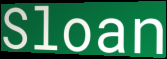
Sloan